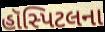
હૉસ્પિટલના